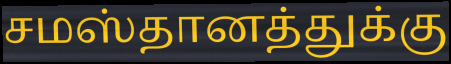
சமஸ்தானத்துக்கு